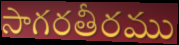
సాగరతీరము